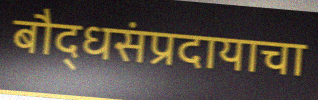
बौद्धसंप्रदायाचा